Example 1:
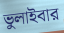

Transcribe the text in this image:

ভুলাইবার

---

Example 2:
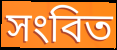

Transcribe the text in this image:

সংবিত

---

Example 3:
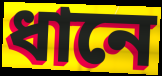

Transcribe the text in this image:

ধানে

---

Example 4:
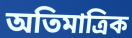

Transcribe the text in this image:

অতিমাত্রিক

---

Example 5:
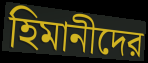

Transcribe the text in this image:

হিমানীদের